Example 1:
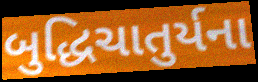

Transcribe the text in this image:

બુદ્ધિચાતુર્યના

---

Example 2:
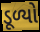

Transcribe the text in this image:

ડૂળ્યો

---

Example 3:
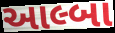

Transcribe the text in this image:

આલ્બા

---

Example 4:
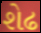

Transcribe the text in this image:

શેઢ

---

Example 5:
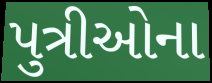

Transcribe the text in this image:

પુત્રીઓના